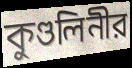
কুণ্ডলিনীর